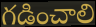
గడించాలి